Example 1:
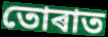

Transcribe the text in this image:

তোৰাত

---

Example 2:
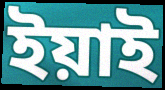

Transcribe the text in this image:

ইয়াই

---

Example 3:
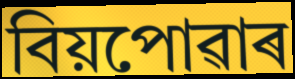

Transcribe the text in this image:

বিয়পোৱাৰ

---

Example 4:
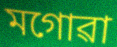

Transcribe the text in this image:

মগোৱা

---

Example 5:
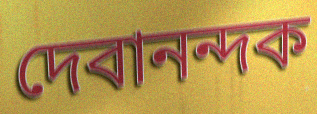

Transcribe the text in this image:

দেবানন্দক